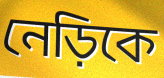
নেড়িকে